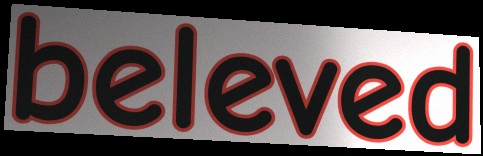
beleved